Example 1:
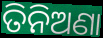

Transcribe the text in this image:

ତିନିଅଣା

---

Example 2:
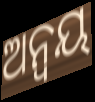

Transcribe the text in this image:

ଅନ୍ଵୟ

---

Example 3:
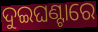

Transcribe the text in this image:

ଦୁଇଘଣ୍ଟାରେ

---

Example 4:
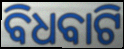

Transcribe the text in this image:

ବିଧବାଟି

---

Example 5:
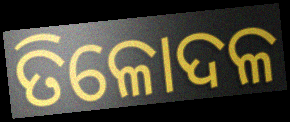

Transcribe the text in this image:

ତିଳୋଦଳ